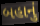
બહાનું